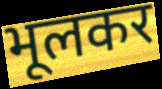
भूलकर